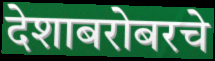
देशाबरोबरचे